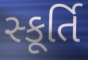
સ્કૂર્તિ